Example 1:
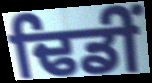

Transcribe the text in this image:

ਢਿਡੀਂ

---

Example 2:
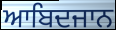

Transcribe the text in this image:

ਆਬਿਦਜਾਨ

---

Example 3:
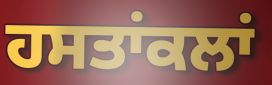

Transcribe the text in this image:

ਹਸਤਾਂਕਲਾਂ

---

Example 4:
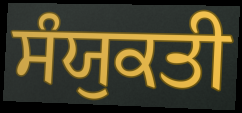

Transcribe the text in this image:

ਸੰਯੁਕਤੀ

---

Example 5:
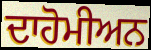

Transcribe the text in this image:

ਦਾਹੋਮੀਅਨ